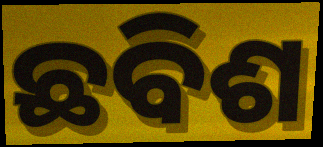
ଛବିଶ